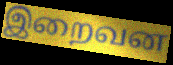
இறைவன